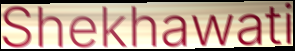
Shekhawati